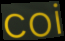
coi